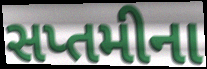
સપ્તમીના